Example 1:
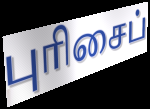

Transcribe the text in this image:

புரிசைப்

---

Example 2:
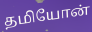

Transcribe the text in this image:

தமியோன்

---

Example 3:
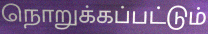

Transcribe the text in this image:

நொறுக்கப்பட்டும்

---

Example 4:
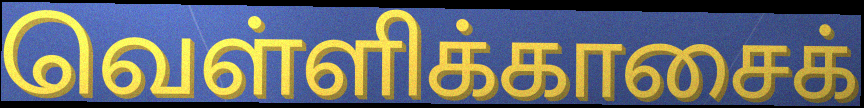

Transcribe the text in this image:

வெள்ளிக்காசைக்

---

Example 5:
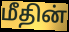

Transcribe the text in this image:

மீதின்